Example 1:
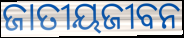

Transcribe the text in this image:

ଜାତୀୟଜୀବନ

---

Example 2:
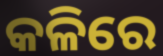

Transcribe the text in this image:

କଳିରେ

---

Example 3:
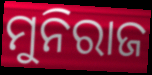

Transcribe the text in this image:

ମୁନିରାଜ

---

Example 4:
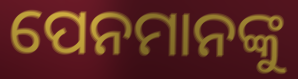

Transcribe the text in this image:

ପେନମାନଙ୍କୁ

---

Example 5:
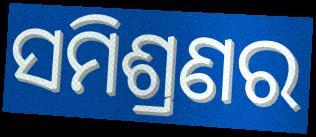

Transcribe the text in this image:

ସମିଶ୍ରଣର